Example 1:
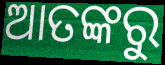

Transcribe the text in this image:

ଆତଙ୍କରୁ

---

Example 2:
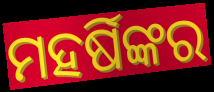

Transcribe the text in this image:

ମହର୍ଷିଙ୍କର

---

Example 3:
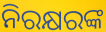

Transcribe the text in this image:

ନିରକ୍ଷରଙ୍କ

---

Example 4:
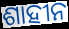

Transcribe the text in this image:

ଶାହୀନ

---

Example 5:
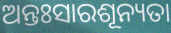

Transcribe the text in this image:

ଅନ୍ତଃସାରଶୂନ୍ୟତା